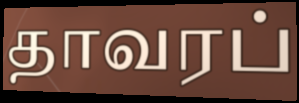
தாவரப்